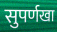
सुपर्णखा